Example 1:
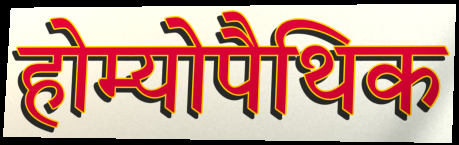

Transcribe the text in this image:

होम्‍योपैथिक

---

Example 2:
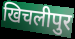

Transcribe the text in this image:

खिचलीपुर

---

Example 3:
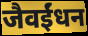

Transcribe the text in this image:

जैवईंधन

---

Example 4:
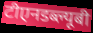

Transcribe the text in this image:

टीएनडब्ल्यूबी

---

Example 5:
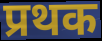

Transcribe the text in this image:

प्रथक